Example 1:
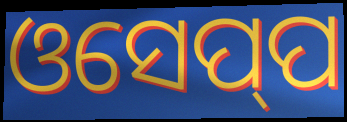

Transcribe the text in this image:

ଓସେପ୍‍ପ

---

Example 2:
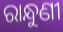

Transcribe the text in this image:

ରାନ୍ଧୁଣୀ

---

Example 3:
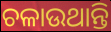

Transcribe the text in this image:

ଚଳାଉଥାନ୍ତି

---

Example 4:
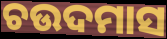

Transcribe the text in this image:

ଚଉଦମାସ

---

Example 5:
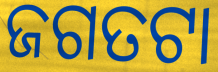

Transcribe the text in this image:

ଜଗତଟା